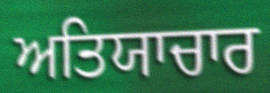
ਅਤਿਯਾਚਾਰ